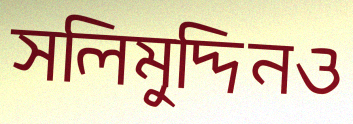
সলিমুদ্দিনও